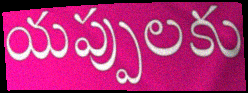
యప్పులకు